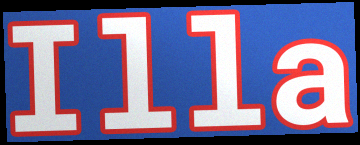
Illa